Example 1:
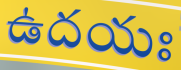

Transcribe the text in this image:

ఉదయః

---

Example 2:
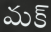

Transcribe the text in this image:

మక్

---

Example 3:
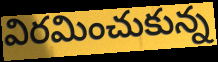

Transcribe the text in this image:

విరమించుకున్న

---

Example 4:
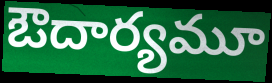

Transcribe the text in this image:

ఔదార్యమూ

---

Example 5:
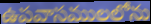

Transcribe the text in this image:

ఉపవాసములలోను